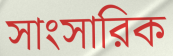
সাংসারিক